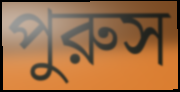
পুরুস